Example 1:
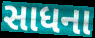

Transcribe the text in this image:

સાધના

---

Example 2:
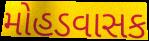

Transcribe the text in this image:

મોહડવાસક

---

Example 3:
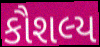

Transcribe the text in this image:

કૌશલ્ય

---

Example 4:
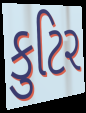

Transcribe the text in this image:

કુટિર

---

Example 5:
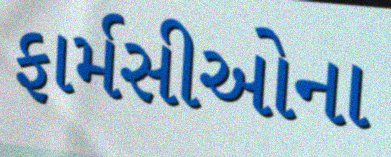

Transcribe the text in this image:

ફાર્મસીઓના